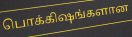
பொக்கிஷங்களான